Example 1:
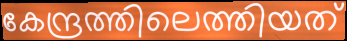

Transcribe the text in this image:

കേന്ദ്രത്തിലെത്തിയത്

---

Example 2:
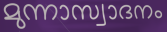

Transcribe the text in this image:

മുന്നാസ്വാദനം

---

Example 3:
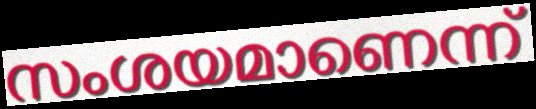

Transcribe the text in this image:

സംശയമാണെന്ന്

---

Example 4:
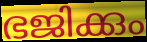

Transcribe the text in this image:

ഭജിക്കും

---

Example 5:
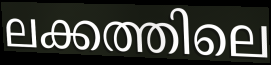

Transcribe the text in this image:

ലക്കത്തിലെ